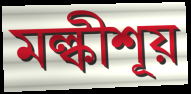
মল্কীশূয়